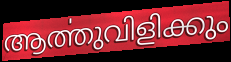
ആൎത്തുവിളിക്കും